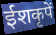
ईशकृपें